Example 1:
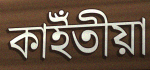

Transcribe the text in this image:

কাইঁতীয়া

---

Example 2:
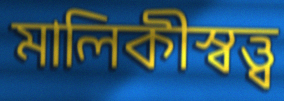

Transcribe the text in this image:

মালিকীস্বত্ত্ব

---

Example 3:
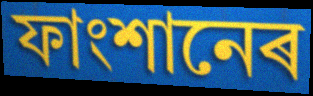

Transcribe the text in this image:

ফাংশানেৰ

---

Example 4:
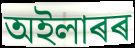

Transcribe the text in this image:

অইলাৰৰ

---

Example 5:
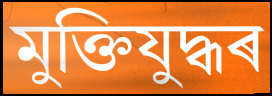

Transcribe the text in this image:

মুক্তিযুদ্ধৰ